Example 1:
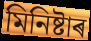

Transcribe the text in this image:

মিনিষ্টাৰ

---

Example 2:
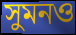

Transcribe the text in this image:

সুমনও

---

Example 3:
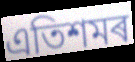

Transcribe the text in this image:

এতিশমৰ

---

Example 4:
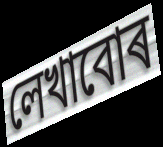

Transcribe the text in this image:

লেখাবোৰ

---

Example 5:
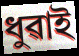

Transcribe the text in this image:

ধুৱাই